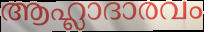
ആഹ്ലാദാരവം